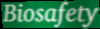
Biosafety